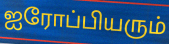
ஐரோப்பியரும்